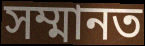
সম্মানত